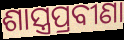
ଶାସ୍ତ୍ରପ୍ରବୀଣା